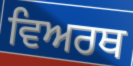
ਵਿਅਰਥ